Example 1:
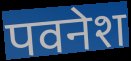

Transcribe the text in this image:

पवनेश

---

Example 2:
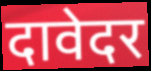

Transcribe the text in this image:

दावेदर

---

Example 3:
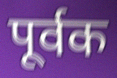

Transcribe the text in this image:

पूर्वक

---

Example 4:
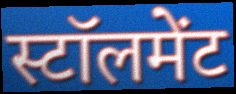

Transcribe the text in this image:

स्टॉलमेंट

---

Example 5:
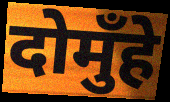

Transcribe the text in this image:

दोमुँहे